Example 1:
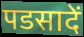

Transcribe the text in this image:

पडसादें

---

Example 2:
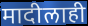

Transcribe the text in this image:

मादीलाही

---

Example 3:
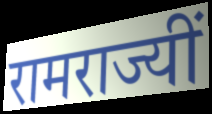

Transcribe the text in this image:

रामराज्यीं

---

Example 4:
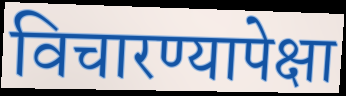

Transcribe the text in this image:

विचारण्यापेक्षा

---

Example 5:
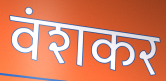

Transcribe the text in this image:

वंशकर